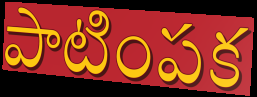
పాటింపక